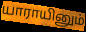
யாராயினும்